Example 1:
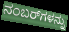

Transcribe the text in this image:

ನಂಬರ್‌ಗಳನ್ನು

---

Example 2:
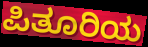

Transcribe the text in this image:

ಪಿತೂರಿಯ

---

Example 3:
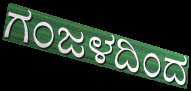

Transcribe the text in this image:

ಗಂಜಳದಿಂದ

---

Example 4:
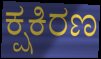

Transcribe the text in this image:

ಕ್ಷಕಿರಣ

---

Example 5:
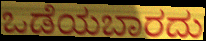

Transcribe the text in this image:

ಒಡೆಯಬಾರದು